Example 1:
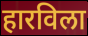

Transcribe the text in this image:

हारविला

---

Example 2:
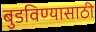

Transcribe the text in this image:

बुडविण्यासाठी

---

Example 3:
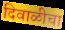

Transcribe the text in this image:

दिवाळीचा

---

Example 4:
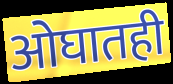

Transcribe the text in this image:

ओघातही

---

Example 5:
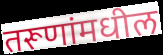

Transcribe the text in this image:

तरूणांमधील